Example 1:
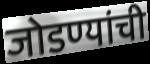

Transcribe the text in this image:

जोडण्यांची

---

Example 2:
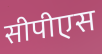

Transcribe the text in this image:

सीपीएस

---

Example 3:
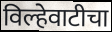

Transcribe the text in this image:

विल्हेवाटीचा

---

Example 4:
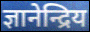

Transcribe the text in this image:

ज्ञानेन्द्रिय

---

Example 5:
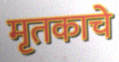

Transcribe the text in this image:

मृतकाचे